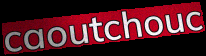
caoutchouc